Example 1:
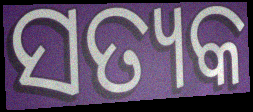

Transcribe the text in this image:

ସତ୍ୟକ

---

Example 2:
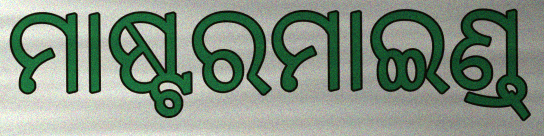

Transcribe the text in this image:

ମାଷ୍ଟରମାଇଣ୍ଡ୍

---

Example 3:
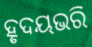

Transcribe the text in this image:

ହୃଦୟଭରି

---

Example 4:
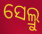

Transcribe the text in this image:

ସେଲ୍ରୁ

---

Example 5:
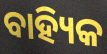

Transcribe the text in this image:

ବାହ୍ୟିକ